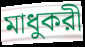
মাধুকরী